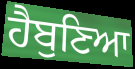
ਹੈਬੁਣਿਆ